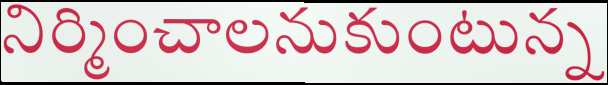
నిర్మించాలనుకుంటున్న